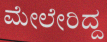
ಮೇಲೇರಿದ್ದ